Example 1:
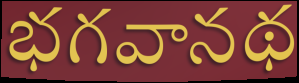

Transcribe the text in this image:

భగవానథ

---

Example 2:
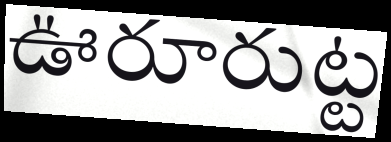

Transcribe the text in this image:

ఊరూరుట్ట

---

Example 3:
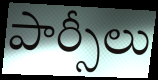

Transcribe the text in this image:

పార్సీలు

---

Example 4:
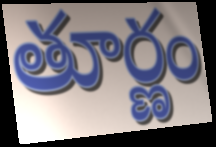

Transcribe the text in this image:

తూర్ణం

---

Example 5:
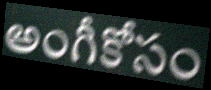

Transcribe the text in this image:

అంగీకోసం